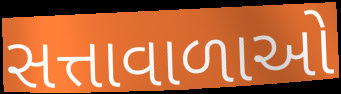
સત્તાવાળાઓ